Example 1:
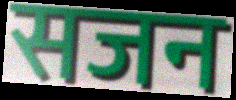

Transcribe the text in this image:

सजन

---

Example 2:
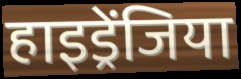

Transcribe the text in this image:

हाइड्रेंजिया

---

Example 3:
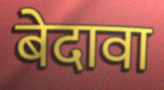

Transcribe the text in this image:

बेदावा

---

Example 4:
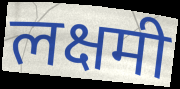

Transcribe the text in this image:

लक्षमी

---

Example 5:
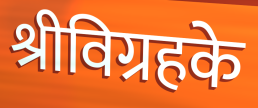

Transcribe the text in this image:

श्रीविग्रहके